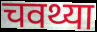
चवथ्या